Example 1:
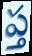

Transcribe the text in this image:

ప్త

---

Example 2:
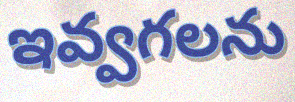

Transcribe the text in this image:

ఇవ్వగలను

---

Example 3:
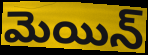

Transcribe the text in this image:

మెయిన్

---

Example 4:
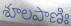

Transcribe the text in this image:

శూలపాణిః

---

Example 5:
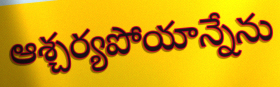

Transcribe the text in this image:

ఆశ్చర్యపోయాన్నేను